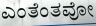
ಎಂತೆಂತವೋ